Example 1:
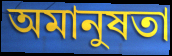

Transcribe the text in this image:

অমানুষতা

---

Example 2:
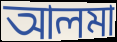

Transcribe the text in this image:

আলমা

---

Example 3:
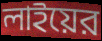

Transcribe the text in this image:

লাইয়ের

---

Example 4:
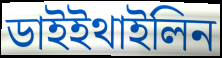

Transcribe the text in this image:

ডাইইথাইলিন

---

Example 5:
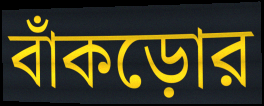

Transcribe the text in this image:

বাঁকড়োর